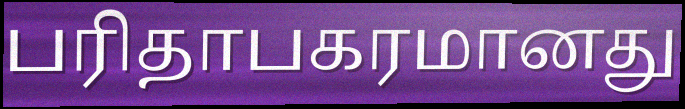
பரிதாபகரமானது